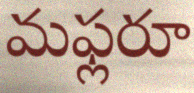
మఫ్లరూ